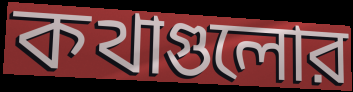
কথাগুলোর